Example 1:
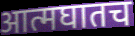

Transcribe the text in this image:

आत्मघातच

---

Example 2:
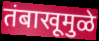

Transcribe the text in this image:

तंबाखूमुळे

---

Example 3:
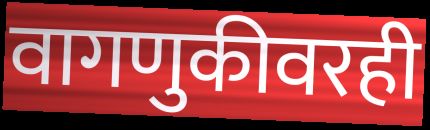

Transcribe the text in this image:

वागणुकीवरही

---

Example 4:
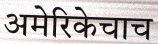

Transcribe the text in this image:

अमेरिकेचाच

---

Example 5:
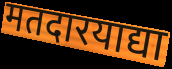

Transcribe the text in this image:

मतदारयाद्या